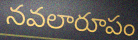
నవలారూపం